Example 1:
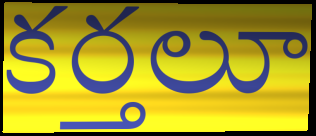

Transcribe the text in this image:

కర్తలూ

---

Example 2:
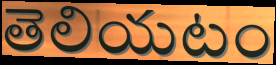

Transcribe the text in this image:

తెలియటం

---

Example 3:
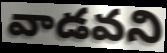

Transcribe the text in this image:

వాడవని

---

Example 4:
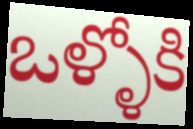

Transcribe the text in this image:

ఒళ్ళోకి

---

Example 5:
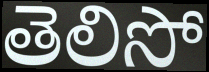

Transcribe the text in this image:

తెలిసో